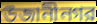
উজানীনগর